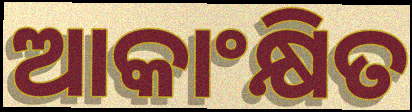
ଆକାଂକ୍ଷିତ